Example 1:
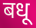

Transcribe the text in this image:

बधू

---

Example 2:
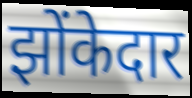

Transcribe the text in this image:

झोंकेदार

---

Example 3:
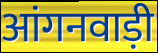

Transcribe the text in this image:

आंगनवाड़ी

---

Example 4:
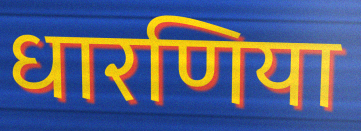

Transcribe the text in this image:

धारणिया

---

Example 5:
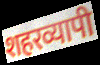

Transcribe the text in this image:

शहरव्यापी